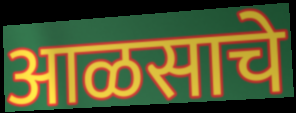
आळसाचे